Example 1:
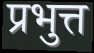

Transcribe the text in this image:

प्रभुत्त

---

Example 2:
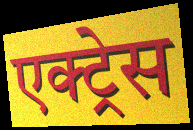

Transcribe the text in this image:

एक्ट्र्रेस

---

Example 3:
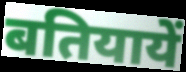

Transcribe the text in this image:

बतियायें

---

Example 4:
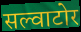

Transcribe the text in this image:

सल्वाटोर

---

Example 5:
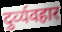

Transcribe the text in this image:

दुर्व्‍यवहार